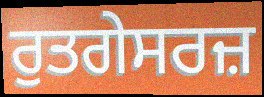
ਰੁਤਗੇਸਰਜ਼